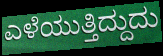
ಎಳೆಯುತ್ತಿದ್ದುದು